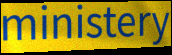
ministery